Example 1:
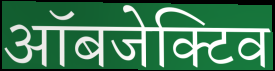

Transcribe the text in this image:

ऑबजेक्टिव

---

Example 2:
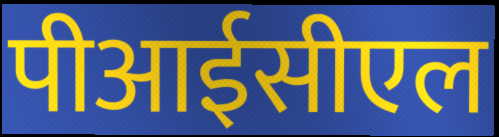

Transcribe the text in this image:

पीआईसीएल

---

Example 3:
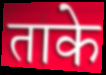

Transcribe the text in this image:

ताके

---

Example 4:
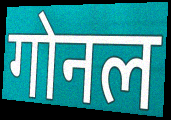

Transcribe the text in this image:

गोनल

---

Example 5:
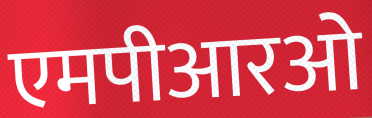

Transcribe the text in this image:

एमपीआरओ